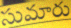
సుమారు